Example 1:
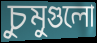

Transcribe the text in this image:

চুমুগুলো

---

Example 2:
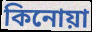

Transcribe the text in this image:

কিনোয়া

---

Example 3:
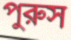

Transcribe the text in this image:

পুরুস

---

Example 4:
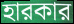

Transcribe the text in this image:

হারকার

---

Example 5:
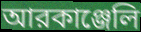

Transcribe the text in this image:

আরকাঞ্জেলি